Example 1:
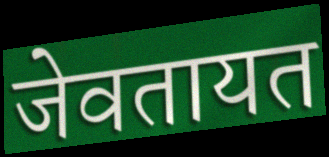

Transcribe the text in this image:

जेवतायत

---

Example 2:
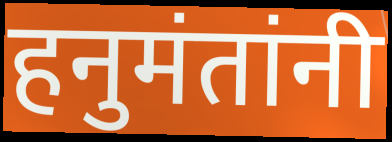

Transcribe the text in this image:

हनुमंतांनी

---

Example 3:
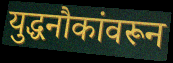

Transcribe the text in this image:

युद्धनौकांवरून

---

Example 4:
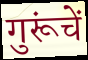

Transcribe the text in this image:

गुरूंचें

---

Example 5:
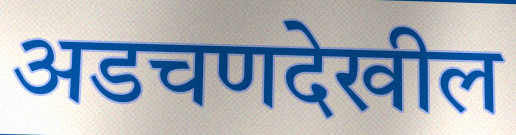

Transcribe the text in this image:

अडचणदेखील